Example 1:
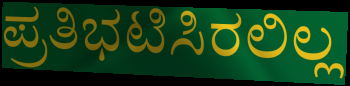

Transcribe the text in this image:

ಪ್ರತಿಭಟಿಸಿರಲಿಲ್ಲ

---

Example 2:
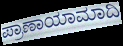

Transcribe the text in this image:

ಪ್ರಾಣಾಯಾಮಾದಿ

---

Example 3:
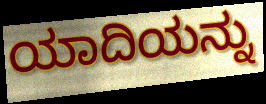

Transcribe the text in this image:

ಯಾದಿಯನ್ನು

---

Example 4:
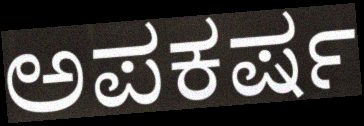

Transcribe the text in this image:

ಅಪಕರ್ಷ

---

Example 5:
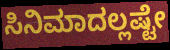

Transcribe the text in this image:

ಸಿನಿಮಾದಲ್ಲಷ್ಟೇ